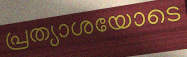
പ്രത്യാശയോടെ